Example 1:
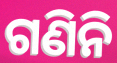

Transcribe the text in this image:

ଗଣିନି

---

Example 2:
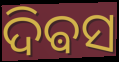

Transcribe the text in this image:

ଦିଵସ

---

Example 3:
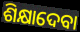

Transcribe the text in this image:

ଶିକ୍ଷାଦେବା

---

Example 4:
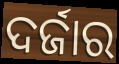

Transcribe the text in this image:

ଦର୍ଜାର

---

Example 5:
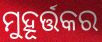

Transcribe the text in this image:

ମୁହୂର୍ତ୍ତକର